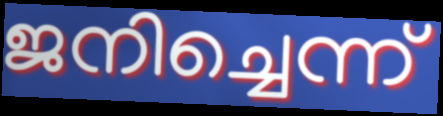
ജനിച്ചെന്ന്